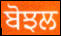
ਬੋਝਲ